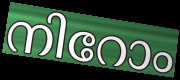
നിറോം